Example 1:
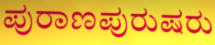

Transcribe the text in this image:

ಪುರಾಣಪುರುಷರು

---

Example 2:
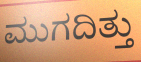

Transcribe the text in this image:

ಮುಗದಿತ್ತು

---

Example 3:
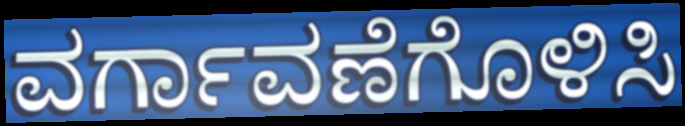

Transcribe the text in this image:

ವರ್ಗಾವಣೆಗೊಳಿಸಿ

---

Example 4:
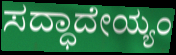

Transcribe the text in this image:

ಸದ್ಧಾದೇಯ್ಯಂ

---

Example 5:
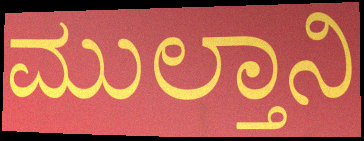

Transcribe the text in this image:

ಮುಲ್ತಾನಿ